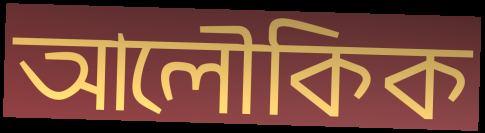
আলৌকিক